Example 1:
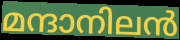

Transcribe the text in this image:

മന്ദാനിലൻ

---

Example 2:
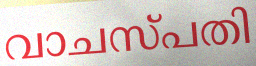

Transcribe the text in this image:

വാചസ്പതി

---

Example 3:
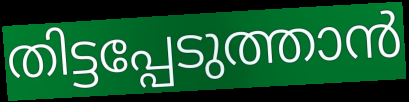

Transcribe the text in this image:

തിട്ടപ്പേടുത്താൻ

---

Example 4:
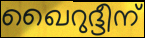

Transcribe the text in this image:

ഖൈറുദ്ദീന്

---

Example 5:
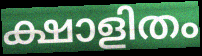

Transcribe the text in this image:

ക്ഷാളിതം